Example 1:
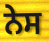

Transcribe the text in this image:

ਨੇਸ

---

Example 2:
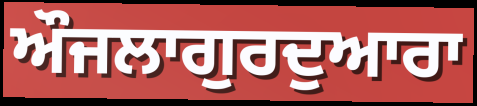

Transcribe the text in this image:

ਔਜਲਾਗੁਰਦੁਆਰਾ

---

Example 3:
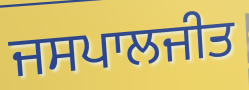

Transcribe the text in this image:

ਜਸਪਾਲਜੀਤ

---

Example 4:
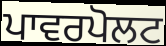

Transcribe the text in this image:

ਪਾਵਰਪੋਲਟ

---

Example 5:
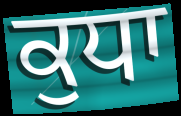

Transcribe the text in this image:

ਕੁਧਾ